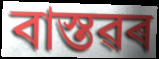
বাস্তৱৰ